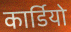
कार्डियो